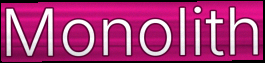
Monolith